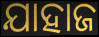
ଯାହାଜ